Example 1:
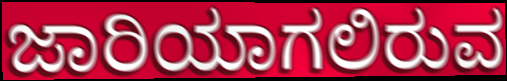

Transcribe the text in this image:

ಜಾರಿಯಾಗಲಿರುವ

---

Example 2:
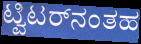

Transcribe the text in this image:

ಟ್ವಿಟರ್‌ನಂತಹ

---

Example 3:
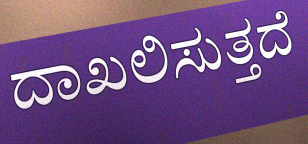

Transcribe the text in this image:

ದಾಖಲಿಸುತ್ತದೆ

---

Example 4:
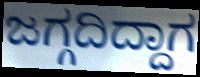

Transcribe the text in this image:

ಜಗ್ಗದಿದ್ದಾಗ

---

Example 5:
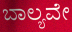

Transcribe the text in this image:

ಬಾಲ್ಯವೇ